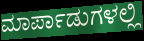
ಮಾರ್ಪಾಡುಗಳಲ್ಲಿ